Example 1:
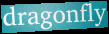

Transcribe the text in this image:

dragonfly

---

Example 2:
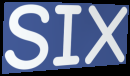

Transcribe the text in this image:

SIX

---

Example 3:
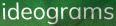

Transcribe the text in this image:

ideograms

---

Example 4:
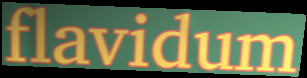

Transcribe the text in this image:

flavidum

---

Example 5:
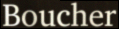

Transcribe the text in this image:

Boucher